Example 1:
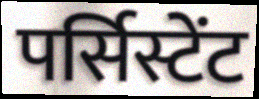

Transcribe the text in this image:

पर्सिस्टेंट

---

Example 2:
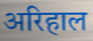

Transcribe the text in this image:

अरिहाल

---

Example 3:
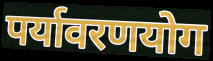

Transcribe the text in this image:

पर्यावरणयोग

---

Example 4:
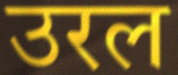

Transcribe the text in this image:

उरल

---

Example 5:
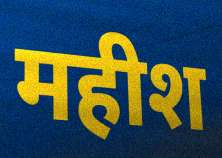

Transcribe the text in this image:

महीश